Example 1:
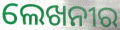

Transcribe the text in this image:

ଲେଖନୀର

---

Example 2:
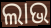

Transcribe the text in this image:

ଲାଭ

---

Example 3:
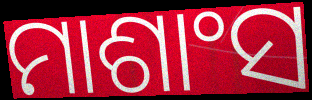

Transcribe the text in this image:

ମାଶାଂସ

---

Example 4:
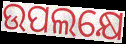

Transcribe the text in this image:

ଉପଲକ୍ଷେ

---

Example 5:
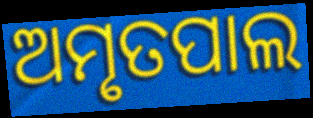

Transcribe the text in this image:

ଅମୃତପାଲ